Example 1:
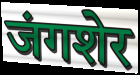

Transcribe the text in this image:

जंगशेर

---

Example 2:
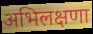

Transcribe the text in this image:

अभिलक्षणा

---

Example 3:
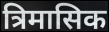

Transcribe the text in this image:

त्रिमासिक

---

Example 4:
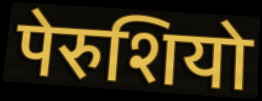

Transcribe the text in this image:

पेरुशियो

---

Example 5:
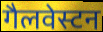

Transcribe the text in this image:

गैलवेस्टन